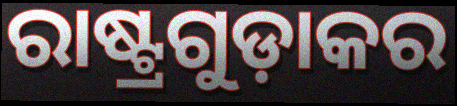
ରାଷ୍ଟ୍ରଗୁଡ଼ାକର